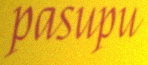
pasupu